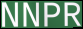
NNPR